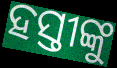
ହସ୍ତୀଙ୍କୁ